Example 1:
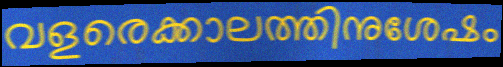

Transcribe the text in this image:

വളരെക്കാലത്തിനുശേഷം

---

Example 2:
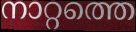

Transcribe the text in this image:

നാറ്റത്തെ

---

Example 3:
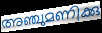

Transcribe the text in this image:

അഞ്ചുമണിക്കു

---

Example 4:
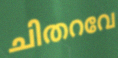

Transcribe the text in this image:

ചിതറവേ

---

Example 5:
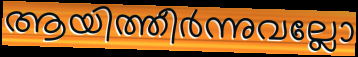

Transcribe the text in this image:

ആയിത്തീർന്നുവല്ലോ